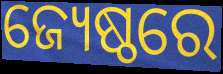
ଜ୍ୟେଷ୍ଠରେ